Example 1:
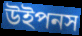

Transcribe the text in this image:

উইপনস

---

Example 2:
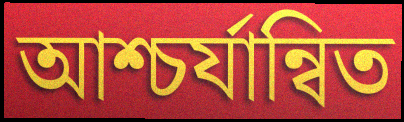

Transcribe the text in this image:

আশ্চর্যান্বিত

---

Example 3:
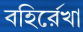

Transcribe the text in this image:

বহির্রেখা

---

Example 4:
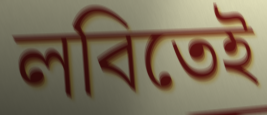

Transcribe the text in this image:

লবিতেই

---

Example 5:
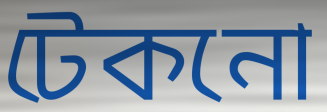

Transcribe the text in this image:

টেকনো